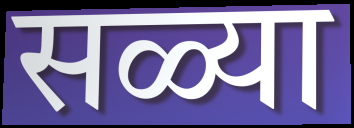
सळ्या